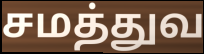
சமத்துவ